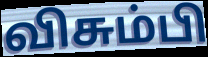
விசும்பி